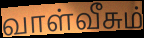
வாள்வீசும்